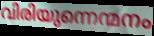
വിരിയുന്നെന്മനം